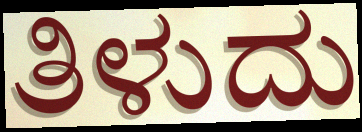
ತಿಳುದು